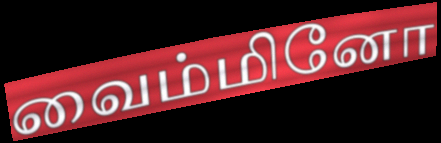
வைம்மினோ